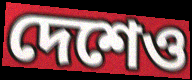
দেশেও